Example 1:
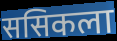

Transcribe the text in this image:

ससिकला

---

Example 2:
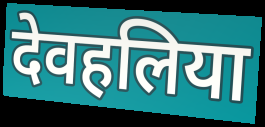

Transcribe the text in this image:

देवहलिया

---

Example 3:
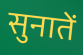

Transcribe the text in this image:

सुनातें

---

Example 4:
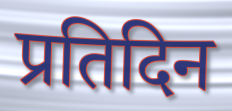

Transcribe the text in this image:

प्रतिदिन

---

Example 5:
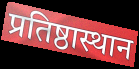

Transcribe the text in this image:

प्रतिष्ठास्थान